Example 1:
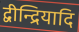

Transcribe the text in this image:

द्वीन्द्रियादि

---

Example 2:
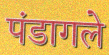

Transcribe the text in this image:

पंडागले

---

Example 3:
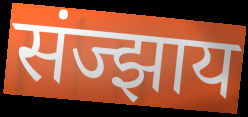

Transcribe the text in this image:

संज्झाय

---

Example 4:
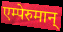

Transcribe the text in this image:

एम्पेरुमान्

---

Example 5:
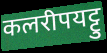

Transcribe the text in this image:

कलरीपयट्टु